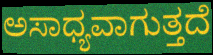
ಅಸಾಧ್ಯವಾಗುತ್ತದೆ